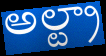
అల్ట్రా